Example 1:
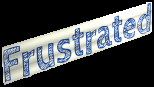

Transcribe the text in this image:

Frustrated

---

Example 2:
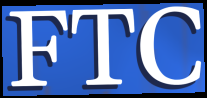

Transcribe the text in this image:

FTC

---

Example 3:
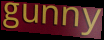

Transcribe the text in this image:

gunny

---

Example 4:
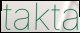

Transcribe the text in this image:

takta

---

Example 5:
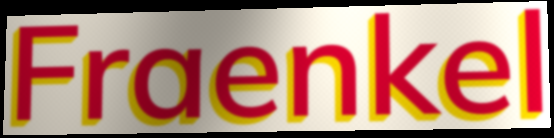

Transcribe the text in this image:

Fraenkel